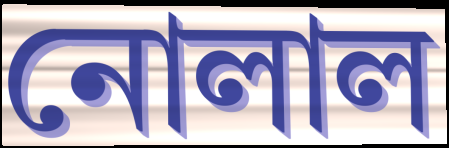
নোলাল